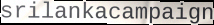
srilankacampaign